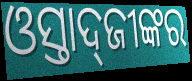
ଓସ୍ତାଦ୍‌ଜୀଙ୍କର